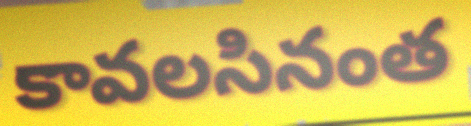
కావలసినంత